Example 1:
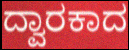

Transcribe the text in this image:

ದ್ವಾರಕಾದ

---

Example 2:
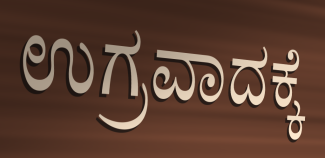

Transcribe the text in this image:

ಉಗ್ರವಾದಕ್ಕೆ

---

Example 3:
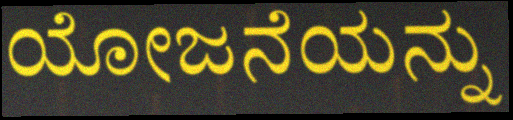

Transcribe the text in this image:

ಯೋಜನೆಯನ್ನು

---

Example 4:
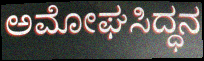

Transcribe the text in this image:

ಅಮೋಘಸಿದ್ಧನ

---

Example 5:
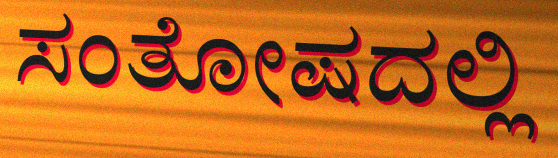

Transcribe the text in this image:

ಸಂತೋಷದಲ್ಲಿ